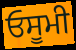
ਓਸੂਮੀ